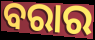
ବରାର